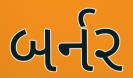
બર્નર